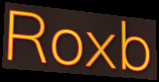
Roxb